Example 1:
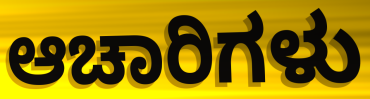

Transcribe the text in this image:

ಆಚಾರಿಗಳು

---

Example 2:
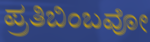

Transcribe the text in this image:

ಪ್ರತಿಬಿಂಬವೋ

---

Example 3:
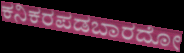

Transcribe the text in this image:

ಕನಿಕರಪಡಬಾರದೋ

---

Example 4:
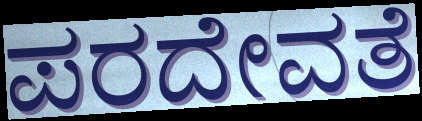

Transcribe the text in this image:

ಪರದೇವತೆ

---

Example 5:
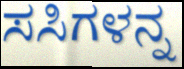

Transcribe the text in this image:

ಸಸಿಗಳನ್ನ